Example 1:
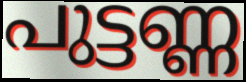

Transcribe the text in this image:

പുട്ടണ്ണ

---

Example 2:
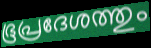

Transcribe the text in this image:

ഭൂപ്രദേശത്തും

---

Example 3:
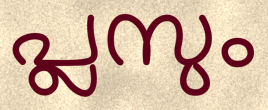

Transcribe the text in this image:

പ്ലസും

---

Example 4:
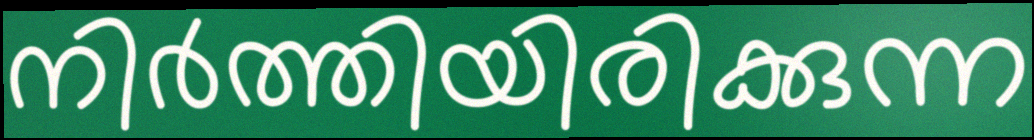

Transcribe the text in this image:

നിർത്തിയിരിക്കുന്ന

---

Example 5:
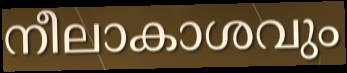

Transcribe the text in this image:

നീലാകാശവും